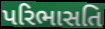
પરિભાસતિ